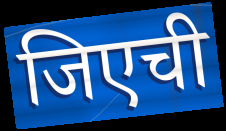
जिएची